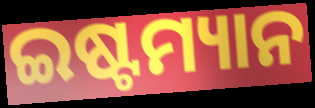
ଇଷ୍ଟମ୍ୟାନ